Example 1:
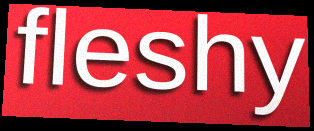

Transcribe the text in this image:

fleshy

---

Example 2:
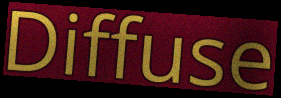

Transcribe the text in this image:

Diffuse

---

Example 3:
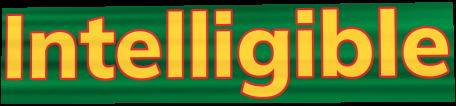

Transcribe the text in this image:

Intelligible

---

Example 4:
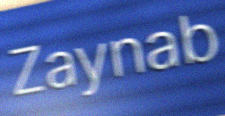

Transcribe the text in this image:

Zaynab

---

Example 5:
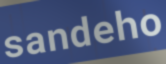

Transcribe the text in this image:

sandeho